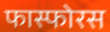
फास्‍फोरस